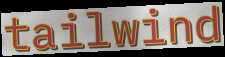
tailwind